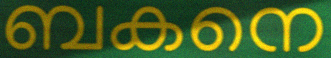
ബകനെ